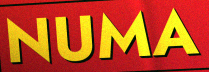
NUMA